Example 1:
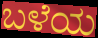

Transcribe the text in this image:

ಬಳೆಯ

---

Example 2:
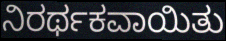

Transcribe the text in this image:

ನಿರರ್ಥಕವಾಯಿತು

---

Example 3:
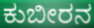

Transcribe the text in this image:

ಕುಬೀರನ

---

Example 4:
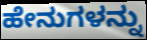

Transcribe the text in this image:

ಹೇನುಗಳನ್ನು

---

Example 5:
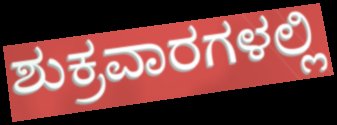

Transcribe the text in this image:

ಶುಕ್ರವಾರಗಳಲ್ಲಿ